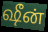
ஷீன்